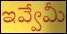
ఇవ్వేమీ